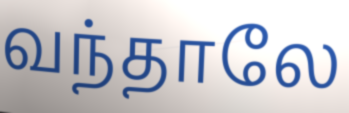
வந்தாலே